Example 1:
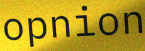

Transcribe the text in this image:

opnion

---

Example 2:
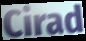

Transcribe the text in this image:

Cirad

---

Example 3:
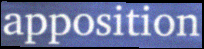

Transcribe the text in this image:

apposition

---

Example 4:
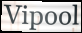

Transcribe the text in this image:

Vipool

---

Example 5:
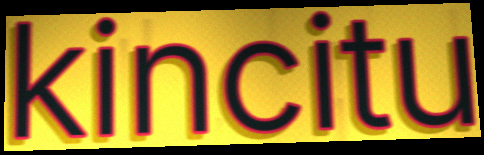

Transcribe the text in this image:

kincitu